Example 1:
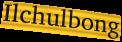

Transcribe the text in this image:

Ilchulbong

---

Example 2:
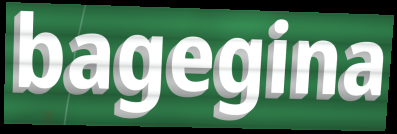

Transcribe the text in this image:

bagegina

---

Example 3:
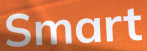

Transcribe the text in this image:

Smart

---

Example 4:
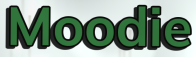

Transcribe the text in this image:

Moodie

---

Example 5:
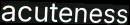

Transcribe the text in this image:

acuteness